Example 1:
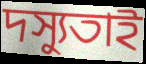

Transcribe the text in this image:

দস্যুতাই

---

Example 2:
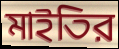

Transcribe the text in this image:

মাইতির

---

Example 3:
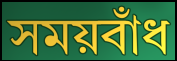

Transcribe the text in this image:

সময়বাঁধ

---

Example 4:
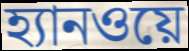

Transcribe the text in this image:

হ্যানওয়ে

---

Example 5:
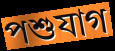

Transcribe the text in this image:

পশুযাগ